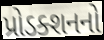
પ્રોડક્શનનો